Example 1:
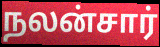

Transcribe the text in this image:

நலன்சார்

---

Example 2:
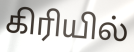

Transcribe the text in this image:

கிரியில்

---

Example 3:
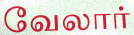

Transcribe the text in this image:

வேலார்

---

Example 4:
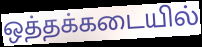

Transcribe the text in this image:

ஒத்தக்கடையில்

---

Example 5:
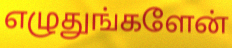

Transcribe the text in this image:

எழுதுங்களேன்